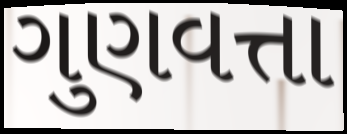
ગુણવત્તા